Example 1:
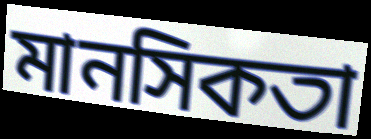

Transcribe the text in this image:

মানসিকতা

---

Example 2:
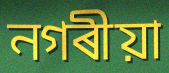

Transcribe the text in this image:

নগৰীয়া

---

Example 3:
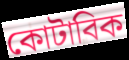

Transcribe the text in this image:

কোটাবিক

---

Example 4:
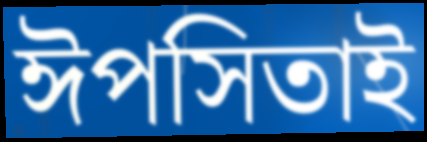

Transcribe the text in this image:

ঈপসিতাই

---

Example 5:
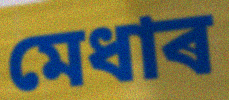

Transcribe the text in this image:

মেধাৰ